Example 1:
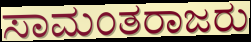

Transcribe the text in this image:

ಸಾಮಂತರಾಜರು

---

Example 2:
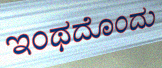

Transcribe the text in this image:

ಇಂಥದೊಂದು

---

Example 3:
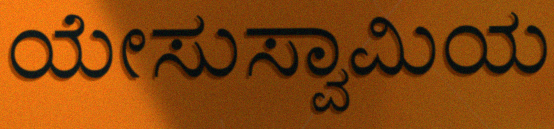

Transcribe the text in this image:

ಯೇಸುಸ್ವಾಮಿಯ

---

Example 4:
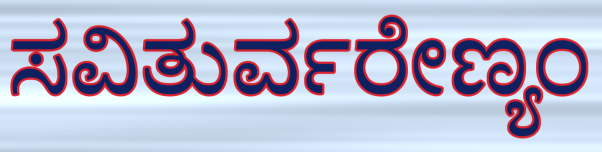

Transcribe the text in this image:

ಸವಿತುರ್ವರೇಣ್ಯಂ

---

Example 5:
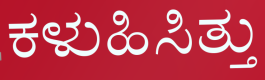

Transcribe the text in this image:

ಕಳುಹಿಸಿತ್ತು